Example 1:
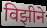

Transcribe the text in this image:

विझीने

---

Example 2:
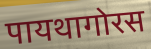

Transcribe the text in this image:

पायथागोरस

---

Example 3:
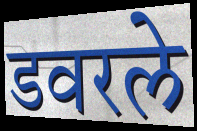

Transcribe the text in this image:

डवरले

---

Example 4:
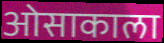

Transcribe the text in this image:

ओसाकाला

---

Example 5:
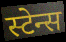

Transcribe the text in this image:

स्टेन्स